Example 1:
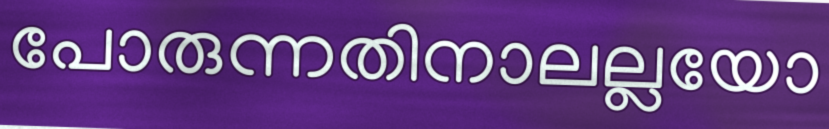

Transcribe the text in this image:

പോരുന്നതിനാലല്ലയോ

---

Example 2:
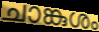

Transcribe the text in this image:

ചാങ്കുശം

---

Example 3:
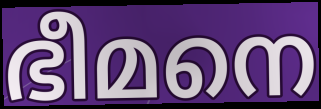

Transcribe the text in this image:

ഭീമനെ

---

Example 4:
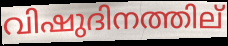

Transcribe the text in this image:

വിഷുദിനത്തില്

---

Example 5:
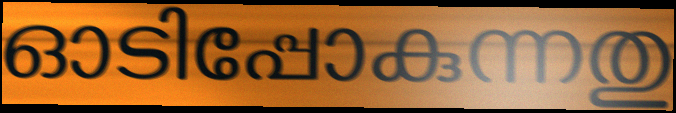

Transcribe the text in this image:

ഓടിപ്പോകുന്നതു